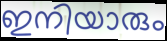
ഇനിയാരും